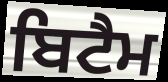
ਬਿਟੈਮ